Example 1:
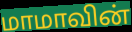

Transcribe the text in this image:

மாமாவின்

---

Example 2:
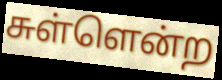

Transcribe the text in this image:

சுள்ளென்ற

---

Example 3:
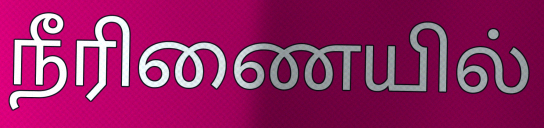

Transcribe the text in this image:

நீரிணையில்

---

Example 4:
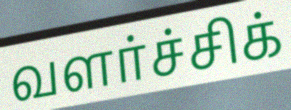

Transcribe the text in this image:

வளர்ச்சிக்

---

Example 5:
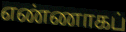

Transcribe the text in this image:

எண்ணாகப்